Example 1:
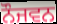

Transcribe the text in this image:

ਨੌਜਵਨ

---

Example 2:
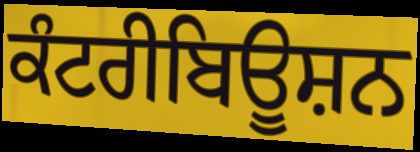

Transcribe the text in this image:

ਕੰਟਰੀਬਿਊਸ਼ਨ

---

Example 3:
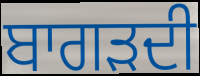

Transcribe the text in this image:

ਬਾਗੜਦੀ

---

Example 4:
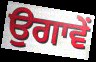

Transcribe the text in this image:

ਉਗਾਵੇਂ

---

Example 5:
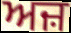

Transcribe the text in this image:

ਅਜ਼